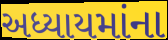
અધ્યાયમાંના